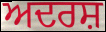
ਅਦਰਸ਼